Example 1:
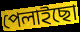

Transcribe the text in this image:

পেলাইছো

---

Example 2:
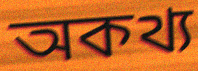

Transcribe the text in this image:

অকথ্য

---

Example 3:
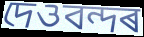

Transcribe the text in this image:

দেওবন্দৰ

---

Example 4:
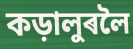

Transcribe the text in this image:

কড়ালুৰলৈ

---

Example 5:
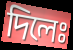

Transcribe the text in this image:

দিলেঃ